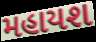
મહાયશ